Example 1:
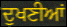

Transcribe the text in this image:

ਦੁਖਣੀਆਂ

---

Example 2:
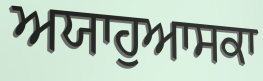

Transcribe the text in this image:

ਅਯਾਹੁਆਸਕਾ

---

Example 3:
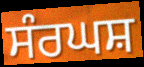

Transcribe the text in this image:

ਸੰਰਘਸ਼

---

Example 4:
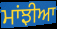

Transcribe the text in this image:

ਮਾਂਝੀਆ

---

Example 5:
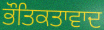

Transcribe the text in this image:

ਭੌਤਿਕਤਾਵਾਦ